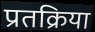
प्रतक्रिया